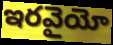
ఇరవైయో